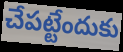
చేపట్టేందుకు